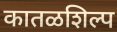
कातळशिल्प